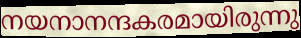
നയനാനന്ദകരമായിരുന്നു